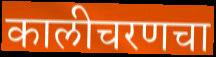
कालीचरणचा